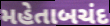
મહેતાબચંદ